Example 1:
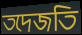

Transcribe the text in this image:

তদেজতি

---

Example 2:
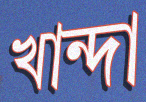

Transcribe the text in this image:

খান্দা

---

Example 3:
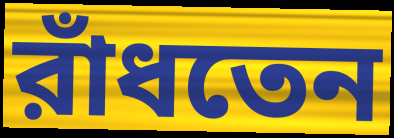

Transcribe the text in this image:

রাঁধতেন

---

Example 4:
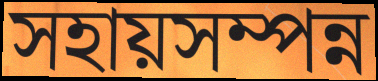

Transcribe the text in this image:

সহায়সম্পন্ন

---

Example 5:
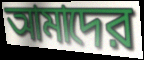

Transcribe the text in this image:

আমাদের